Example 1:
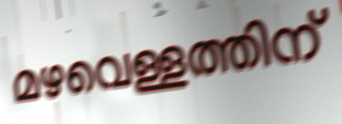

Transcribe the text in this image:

മഴവെള്ളത്തിന്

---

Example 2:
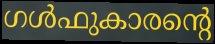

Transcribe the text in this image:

ഗൾഫുകാരന്റെ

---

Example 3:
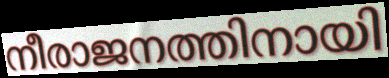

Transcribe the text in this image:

നീരാജനത്തിനായി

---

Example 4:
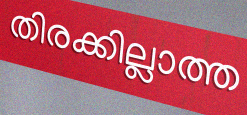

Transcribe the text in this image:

തിരക്കില്ലാത്ത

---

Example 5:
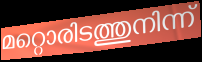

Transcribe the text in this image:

മറ്റൊരിടത്തുനിന്ന്